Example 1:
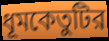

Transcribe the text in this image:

ধূমকেতুটির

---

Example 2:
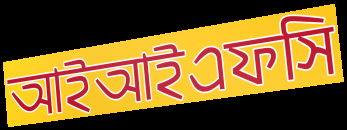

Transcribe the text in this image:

আইআইএফসি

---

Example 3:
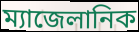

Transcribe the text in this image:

ম্যাজেলানিক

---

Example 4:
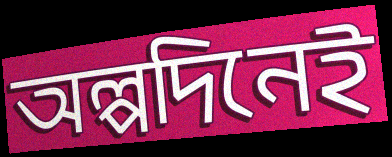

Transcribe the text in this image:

অল্পদিনেই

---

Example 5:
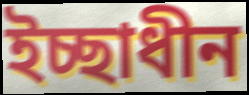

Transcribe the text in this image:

ইচ্ছাধীন